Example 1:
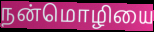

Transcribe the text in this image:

நன்மொழியை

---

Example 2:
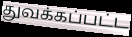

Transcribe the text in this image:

துவக்கப்பட்ட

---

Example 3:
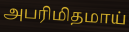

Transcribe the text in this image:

அபரிமிதமாய்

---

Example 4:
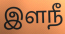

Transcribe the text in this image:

இளநீ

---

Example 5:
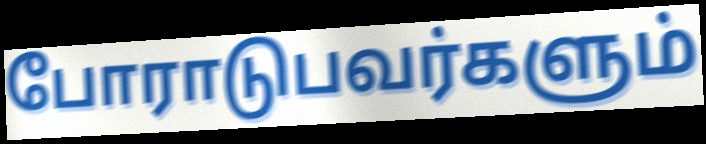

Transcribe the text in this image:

போராடுபவர்களும்